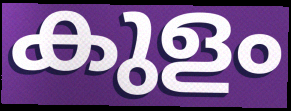
കുളം